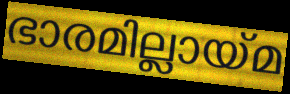
ഭാരമില്ലായ്മ